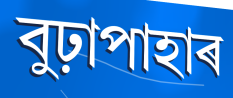
বুঢ়াপাহাৰ